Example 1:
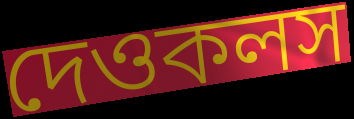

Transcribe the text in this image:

দেওকলস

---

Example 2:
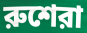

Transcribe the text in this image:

রুশেরা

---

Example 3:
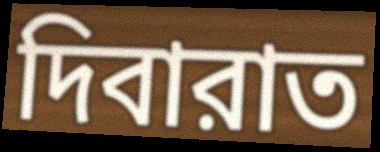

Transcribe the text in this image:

দিবারাত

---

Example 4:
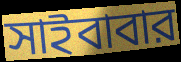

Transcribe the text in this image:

সাইবাবার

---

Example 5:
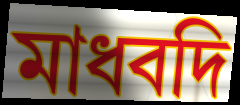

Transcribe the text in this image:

মাধবদি